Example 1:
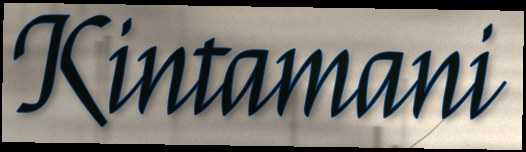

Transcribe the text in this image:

Kintamani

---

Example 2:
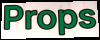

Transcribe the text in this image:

Props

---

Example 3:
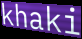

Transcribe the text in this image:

khaki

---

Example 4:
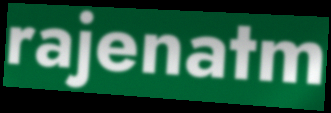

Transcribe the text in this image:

rajenatm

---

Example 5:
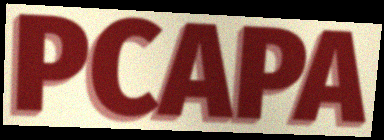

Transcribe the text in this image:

PCAPA